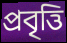
প্রবৃত্তি